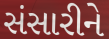
સંસારીને